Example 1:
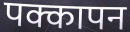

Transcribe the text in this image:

पक्कापन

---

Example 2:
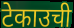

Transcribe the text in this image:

टेकाउची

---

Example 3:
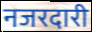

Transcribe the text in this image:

नजरदारी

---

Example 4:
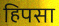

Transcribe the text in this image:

हिपसा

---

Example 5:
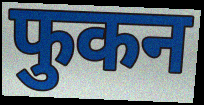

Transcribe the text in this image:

फुकन